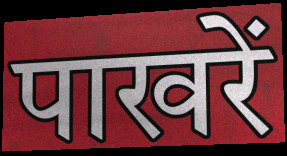
पाखरें